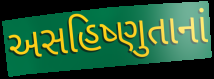
અસહિષ્ણુતાનાં